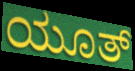
ಯೂತ್